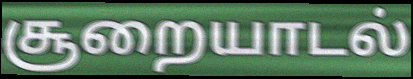
சூறையாடல்